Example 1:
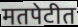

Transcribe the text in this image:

मतपेटीत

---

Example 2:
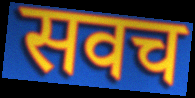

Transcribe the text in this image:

सवच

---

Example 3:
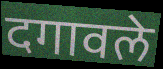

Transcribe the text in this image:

दगावले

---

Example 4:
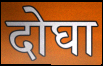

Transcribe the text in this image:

दोघा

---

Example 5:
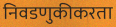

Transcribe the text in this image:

निवडणुकीकरता